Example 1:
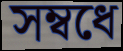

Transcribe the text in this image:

সম্বধে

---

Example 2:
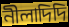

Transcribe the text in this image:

নীলাদিদি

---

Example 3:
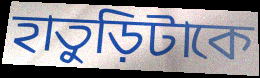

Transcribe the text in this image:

হাতুড়িটাকে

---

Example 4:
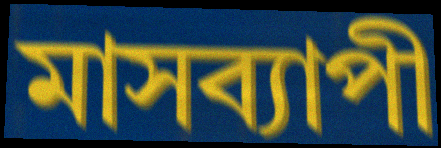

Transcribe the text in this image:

মাসব্যাপী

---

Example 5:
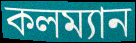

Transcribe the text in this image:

কলম্যান